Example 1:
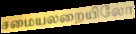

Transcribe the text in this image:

சமையலறையிலோ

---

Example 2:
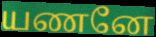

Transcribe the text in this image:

யணனே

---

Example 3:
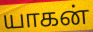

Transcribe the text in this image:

யாகன்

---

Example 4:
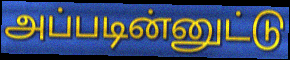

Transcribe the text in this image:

அப்படின்னுட்டு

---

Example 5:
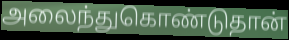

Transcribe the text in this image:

அலைந்துகொண்டுதான்